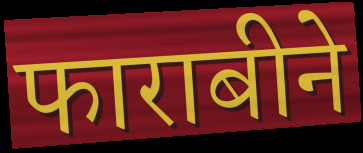
फाराबीने